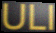
ULI